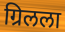
ग्रिलला